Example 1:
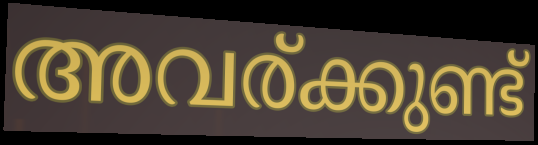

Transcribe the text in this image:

അവര്ക്കുണ്ട്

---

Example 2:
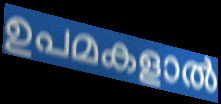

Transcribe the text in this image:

ഉപമകളാൽ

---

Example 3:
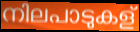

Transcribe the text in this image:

നിലപാടുകള്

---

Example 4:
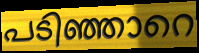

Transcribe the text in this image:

പടിഞ്ഞാറെ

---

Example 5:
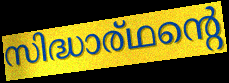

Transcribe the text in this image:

സിദ്ധാര്ഥന്റെ